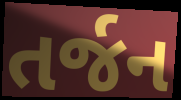
તર્જન